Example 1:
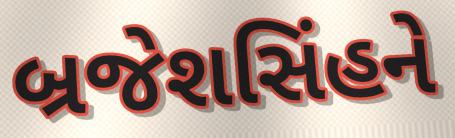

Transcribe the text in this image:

બ્રજેશસિંહને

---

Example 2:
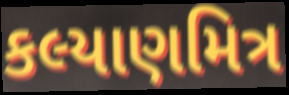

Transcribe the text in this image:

કલ્યાણમિત્ર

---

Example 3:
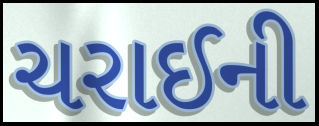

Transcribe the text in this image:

ચરાઈની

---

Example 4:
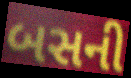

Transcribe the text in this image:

બસની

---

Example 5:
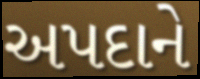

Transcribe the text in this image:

અપદાને